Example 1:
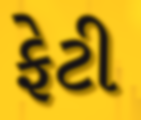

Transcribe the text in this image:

ફેટી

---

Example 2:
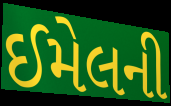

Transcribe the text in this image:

ઈમેલની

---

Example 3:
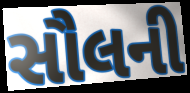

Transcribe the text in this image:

સૌલની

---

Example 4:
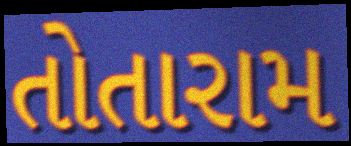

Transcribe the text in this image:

તોતારામ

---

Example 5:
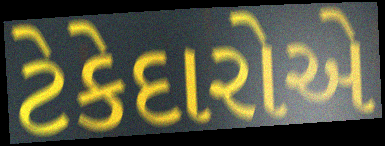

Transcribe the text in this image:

ટેકેદારોએ